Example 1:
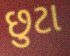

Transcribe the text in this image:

છુટા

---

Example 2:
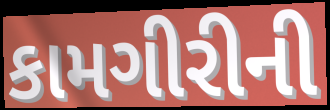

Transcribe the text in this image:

કામગીરીની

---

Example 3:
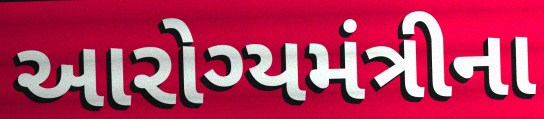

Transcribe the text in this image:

આરોગ્યમંત્રીના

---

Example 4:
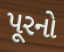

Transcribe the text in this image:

પૂરનો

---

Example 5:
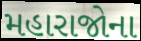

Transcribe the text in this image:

મહારાજોના